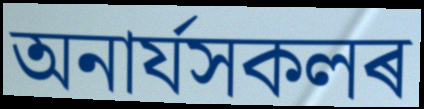
অনাৰ্যসকলৰ